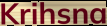
Krihsna